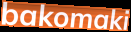
bakomaki